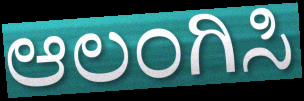
ಆಲಂಗಿಸಿ